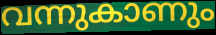
വന്നുകാണും